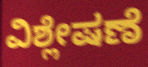
ವಿಶ್ಲೇಷಣೆ